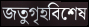
জতুগৃহবিশেষ